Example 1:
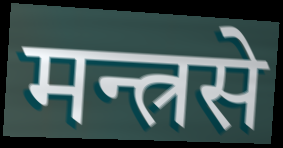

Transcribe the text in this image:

मन्त्रसे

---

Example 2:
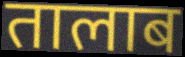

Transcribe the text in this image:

तालाब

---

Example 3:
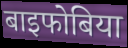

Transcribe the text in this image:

बाइफोबिया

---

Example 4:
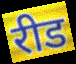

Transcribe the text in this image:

रीड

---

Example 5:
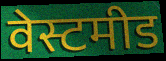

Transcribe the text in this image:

वेस्टमीड